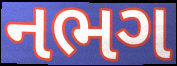
નભગ